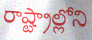
రాష్ట్రాల్లోని